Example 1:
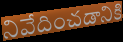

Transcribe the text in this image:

నివేదించడానికి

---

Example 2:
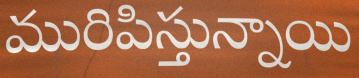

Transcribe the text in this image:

మురిపిస్తున్నాయి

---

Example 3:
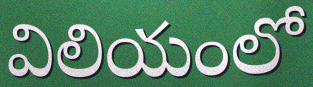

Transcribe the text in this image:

విలియంలో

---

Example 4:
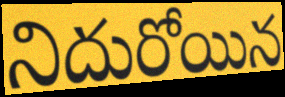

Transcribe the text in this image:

నిదురోయిన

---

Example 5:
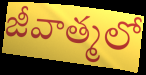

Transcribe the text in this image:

జీవాత్మలో